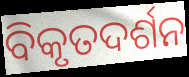
ବିକୃତଦର୍ଶନ